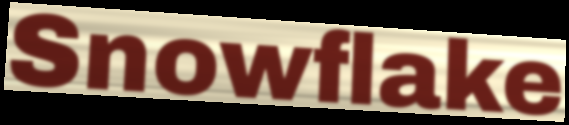
Snowflake